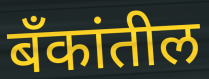
बॅंकांतील